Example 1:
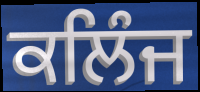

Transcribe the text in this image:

ਕਲਿੰਜ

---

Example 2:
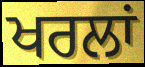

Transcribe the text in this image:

ਖਰਲਾਂ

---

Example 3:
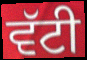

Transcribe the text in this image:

ਵੱਟੀ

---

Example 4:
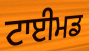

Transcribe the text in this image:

ਟਾਈਮਡ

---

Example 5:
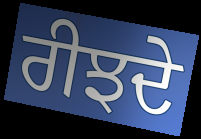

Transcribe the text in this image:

ਰੀਝਦੇ